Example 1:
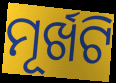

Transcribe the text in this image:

ମୂର୍ଖଟି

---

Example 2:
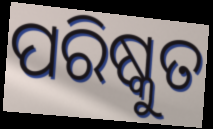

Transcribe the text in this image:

ପରିଷ୍କୁତ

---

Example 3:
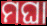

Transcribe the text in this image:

ମଘା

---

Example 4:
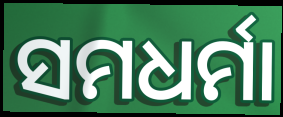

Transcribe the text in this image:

ସମଧର୍ମା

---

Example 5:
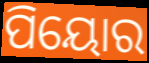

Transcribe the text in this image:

ପିୟୋର